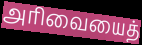
அரிவையைத்